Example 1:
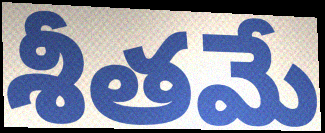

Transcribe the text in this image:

శీతమే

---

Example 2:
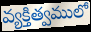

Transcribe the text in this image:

వ్యక్తిత్వములో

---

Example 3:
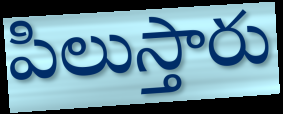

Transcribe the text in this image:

పిలుస్తారు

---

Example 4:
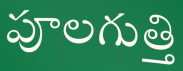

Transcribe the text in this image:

పూలగుత్తి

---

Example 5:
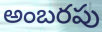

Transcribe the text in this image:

అంబరపు